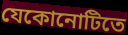
যেকোনোটিতে